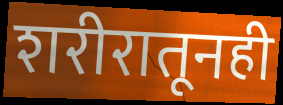
शरीरातूनही